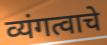
व्यंगत्वाचे